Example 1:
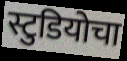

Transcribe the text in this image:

स्टुडियोचा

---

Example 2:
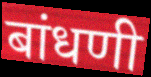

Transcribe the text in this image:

बांधणी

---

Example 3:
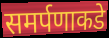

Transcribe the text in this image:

समर्पणाकडे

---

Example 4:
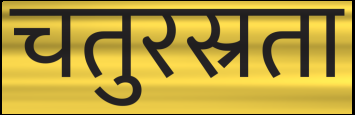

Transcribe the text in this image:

चतुरस्रता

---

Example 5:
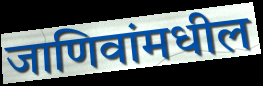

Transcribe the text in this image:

जाणिवांमधील